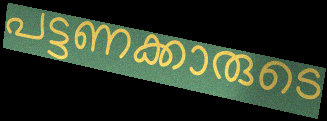
പട്ടണക്കാരുടെ